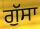
ਗੁੱਸਾ